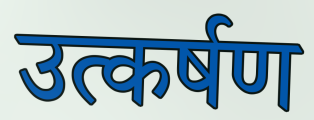
उत्कर्षण